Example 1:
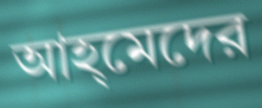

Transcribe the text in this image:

আহ্‌মেদের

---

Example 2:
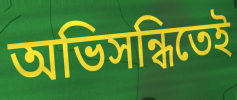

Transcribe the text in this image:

অভিসন্ধিতেই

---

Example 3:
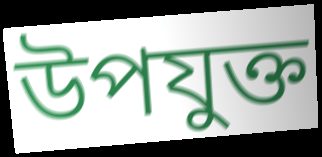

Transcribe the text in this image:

উপযুক্ত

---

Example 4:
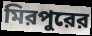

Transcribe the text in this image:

মিরপুরের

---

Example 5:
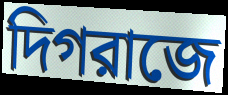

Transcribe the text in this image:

দিগরাজে